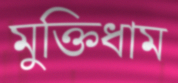
মুক্তিধাম